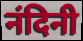
नंदिनी